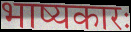
भाष्यकारः